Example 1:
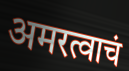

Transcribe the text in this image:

अमरत्वाचं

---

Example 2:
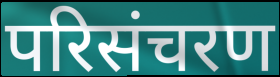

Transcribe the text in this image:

परिसंचरण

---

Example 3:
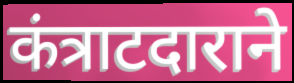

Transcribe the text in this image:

कंत्राटदाराने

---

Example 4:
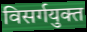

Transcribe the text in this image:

विसर्गयुक्त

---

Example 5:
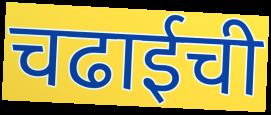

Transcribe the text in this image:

चढाईची